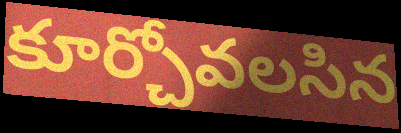
కూర్చోవలసిన